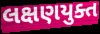
લક્ષણયુક્ત